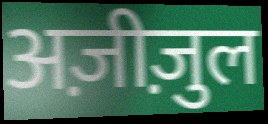
अज़ीज़ुल